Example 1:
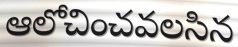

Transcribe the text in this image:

ఆలోచించవలసిన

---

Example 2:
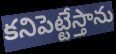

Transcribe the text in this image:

కనిపెట్టేస్తాను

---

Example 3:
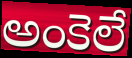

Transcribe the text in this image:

అంకెలే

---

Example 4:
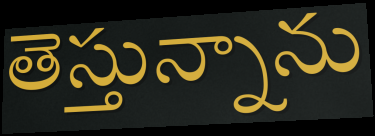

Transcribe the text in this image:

తెస్తున్నాను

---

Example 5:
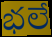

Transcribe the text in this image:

భలే